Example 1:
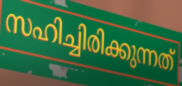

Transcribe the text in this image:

സഹിച്ചിരിക്കുന്നത്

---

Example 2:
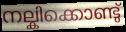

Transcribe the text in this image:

നല്കിക്കൊണ്ടു്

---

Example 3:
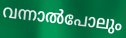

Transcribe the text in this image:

വന്നാൽപോലും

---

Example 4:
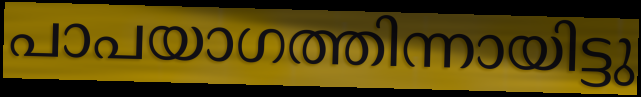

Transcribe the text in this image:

പാപയാഗത്തിന്നായിട്ടു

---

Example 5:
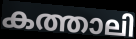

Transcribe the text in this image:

കത്താലി